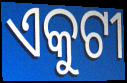
ଏକୁଟୀ